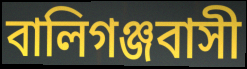
বালিগঞ্জবাসী